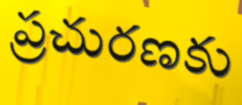
ప్రచురణకు